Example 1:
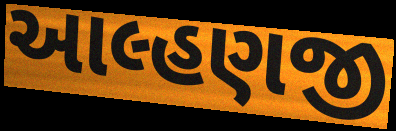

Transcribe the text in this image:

આલ્હણજી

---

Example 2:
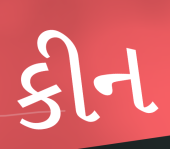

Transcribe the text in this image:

કીન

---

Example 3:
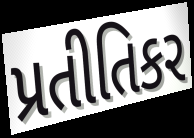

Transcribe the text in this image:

પ્રતીતિકર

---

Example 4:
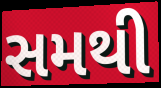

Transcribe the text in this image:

સમથી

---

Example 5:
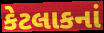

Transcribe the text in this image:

કેટલાકનાં